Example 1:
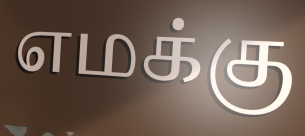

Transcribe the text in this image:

எமக்கு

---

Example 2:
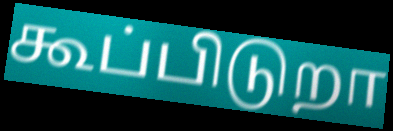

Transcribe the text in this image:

கூப்பிடுறா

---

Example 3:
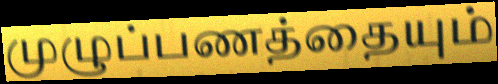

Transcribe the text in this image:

முழுப்பணத்தையும்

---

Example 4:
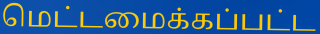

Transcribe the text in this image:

மெட்டமைக்கப்பட்ட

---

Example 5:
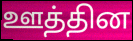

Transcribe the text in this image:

ஊத்தின